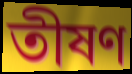
তীষণ